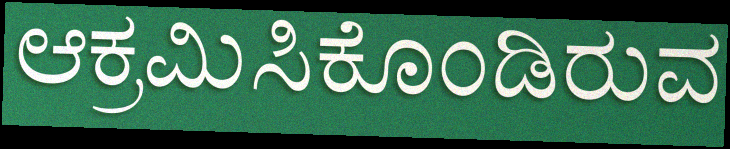
ಆಕ್ರಮಿಸಿಕೊಂಡಿರುವ